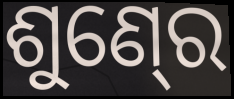
ଶୁଣ୍‍ରେ